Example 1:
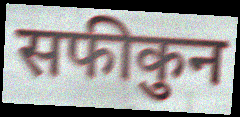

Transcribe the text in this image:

सफीकुन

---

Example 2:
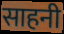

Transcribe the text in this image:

साहनी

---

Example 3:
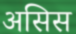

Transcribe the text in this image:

असिस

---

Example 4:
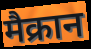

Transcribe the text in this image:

मैक्रान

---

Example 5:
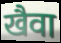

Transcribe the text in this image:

खैवा